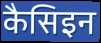
कैसिइन